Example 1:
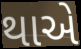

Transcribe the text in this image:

થાએ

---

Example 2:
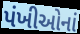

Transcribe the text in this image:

પંખીઓનાં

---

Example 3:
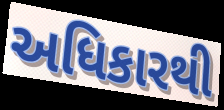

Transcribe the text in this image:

અધિકારથી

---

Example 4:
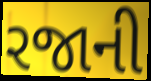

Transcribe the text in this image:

રજાની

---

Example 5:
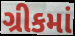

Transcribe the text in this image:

ગ્રીકમાં